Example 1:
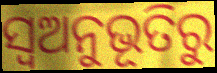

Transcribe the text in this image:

ସ୍ୱଅନୁଭୂତିରୁ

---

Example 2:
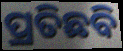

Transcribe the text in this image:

ପ୍ରତିଛବି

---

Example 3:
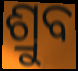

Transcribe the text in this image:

ଶ୍ରୁବ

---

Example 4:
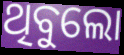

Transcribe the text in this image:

ଥିବୁଲୋ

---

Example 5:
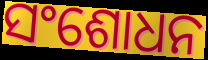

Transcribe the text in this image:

ସଂଶୋଧନ